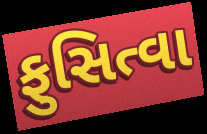
ફુસિત્વા